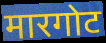
मारगोट